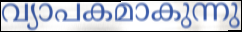
വ്യാപകമാകുന്നു